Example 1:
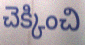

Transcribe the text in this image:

చెక్కించి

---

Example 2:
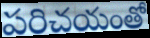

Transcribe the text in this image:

పరిచయంతో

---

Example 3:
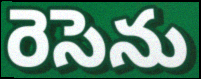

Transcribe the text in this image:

రెసెను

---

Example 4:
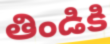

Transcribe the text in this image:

తిండికి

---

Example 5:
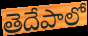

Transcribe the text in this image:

తెదేపాలో